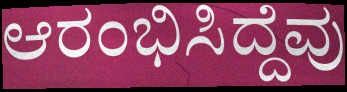
ಆರಂಭಿಸಿದ್ದೆವು